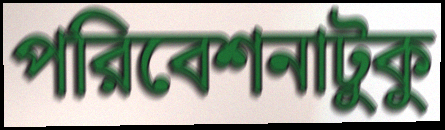
পরিবেশনাটুকু